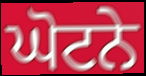
ਘੋਟਨੇ